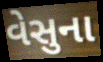
વેસુના